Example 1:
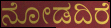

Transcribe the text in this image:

ನೋಡದಿರೆ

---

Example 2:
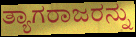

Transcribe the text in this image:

ತ್ಯಾಗರಾಜರನ್ನು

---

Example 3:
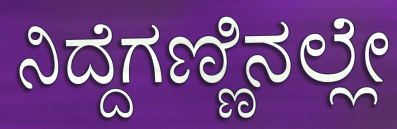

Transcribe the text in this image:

ನಿದ್ದೆಗಣ್ಣಿನಲ್ಲೇ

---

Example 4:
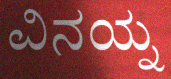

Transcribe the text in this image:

ವಿನಯ್ನ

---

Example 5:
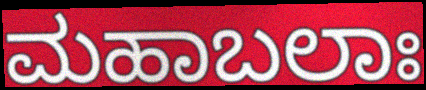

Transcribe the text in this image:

ಮಹಾಬಲಾಃ